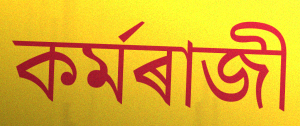
কৰ্মৰাজী